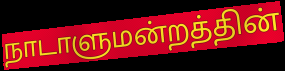
நாடாளுமன்றத்தின்